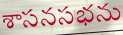
శాసనసభను